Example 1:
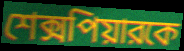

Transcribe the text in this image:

শেক্সপিয়ারকে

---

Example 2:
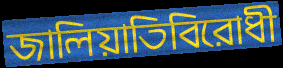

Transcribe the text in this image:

জালিয়াতিবিরোধী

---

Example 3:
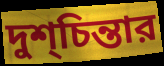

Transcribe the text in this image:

দুশ্‌চিন্তার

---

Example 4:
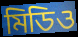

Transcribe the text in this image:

মিডিও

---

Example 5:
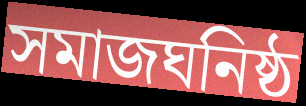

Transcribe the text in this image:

সমাজঘনিষ্ঠ